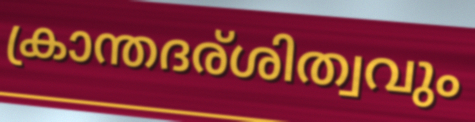
ക്രാന്തദര്ശിത്വവും